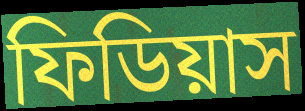
ফিডিয়াস